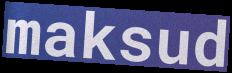
maksud